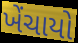
ખેંચાયો